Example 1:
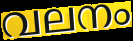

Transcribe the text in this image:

വലനം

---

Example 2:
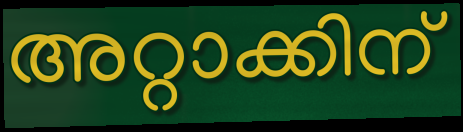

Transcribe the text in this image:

അറ്റാക്കിന്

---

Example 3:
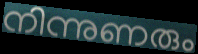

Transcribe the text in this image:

നിന്നുണരും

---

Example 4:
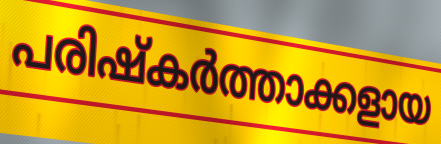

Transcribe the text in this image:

പരിഷ്കർത്താക്കളായ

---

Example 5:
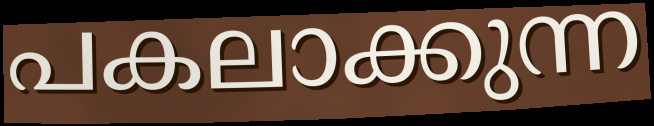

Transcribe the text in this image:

പകലാക്കുന്ന